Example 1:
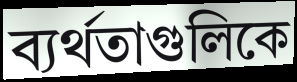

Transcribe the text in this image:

ব্যর্থতাগুলিকে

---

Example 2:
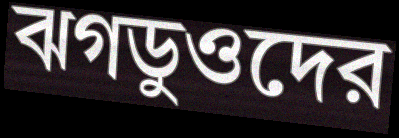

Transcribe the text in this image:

ঝগডুওদের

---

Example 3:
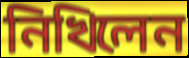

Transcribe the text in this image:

নিখিলেন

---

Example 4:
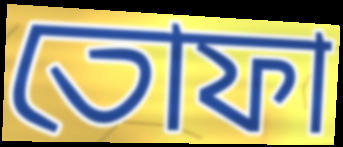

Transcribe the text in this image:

তোফা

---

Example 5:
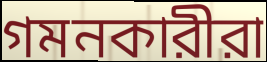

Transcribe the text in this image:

গমনকারীরা